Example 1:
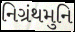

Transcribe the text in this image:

નિગ્રંથમુનિ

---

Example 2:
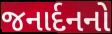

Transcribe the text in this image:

જનાર્દનનો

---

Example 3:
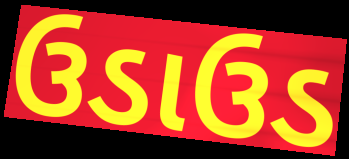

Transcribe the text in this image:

ઉડાઉડ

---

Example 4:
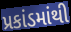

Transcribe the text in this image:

પ્રકાંડમાંથી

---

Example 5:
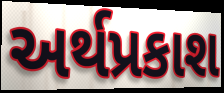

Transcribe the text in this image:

અર્થપ્રકાશ